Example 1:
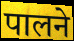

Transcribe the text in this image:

पालने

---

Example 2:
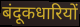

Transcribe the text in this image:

बंदूकधारियों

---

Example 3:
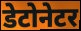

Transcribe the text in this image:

डेटोनेटर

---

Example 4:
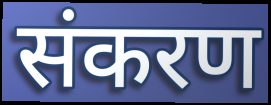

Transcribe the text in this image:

संकरण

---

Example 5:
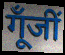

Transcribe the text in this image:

गूँजीं